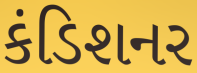
કંડિશનર